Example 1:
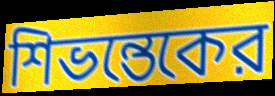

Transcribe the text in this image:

শিভন্তেকের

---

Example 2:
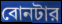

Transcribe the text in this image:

বোনটার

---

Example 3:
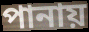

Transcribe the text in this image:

পানায়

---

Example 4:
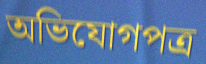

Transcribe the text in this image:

অভিযোগপত্র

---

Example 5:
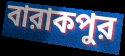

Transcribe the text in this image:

বারাকপুর